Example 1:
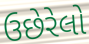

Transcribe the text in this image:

ઉછેરેલો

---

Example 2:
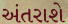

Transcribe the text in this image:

અંતરાશે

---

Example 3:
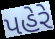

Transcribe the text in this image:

પહેરે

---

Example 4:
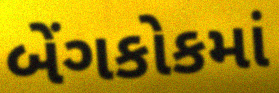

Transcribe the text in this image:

બેંગકોકમાં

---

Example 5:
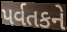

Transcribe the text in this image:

પર્વતકને